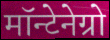
मॉन्टेनेग्रो